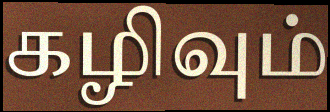
கழிவும்